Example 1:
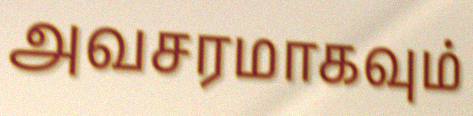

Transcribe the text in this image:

அவசரமாகவும்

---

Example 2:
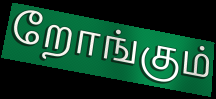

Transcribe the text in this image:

றோங்கும்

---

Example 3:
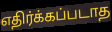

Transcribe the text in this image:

எதிர்க்கப்படாத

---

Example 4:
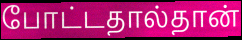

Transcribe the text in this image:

போட்டதால்தான்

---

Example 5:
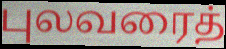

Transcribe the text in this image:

புலவரைத்